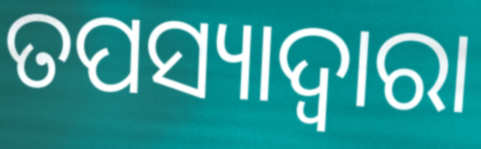
ତପସ୍ୟାଦ୍ୱାରା